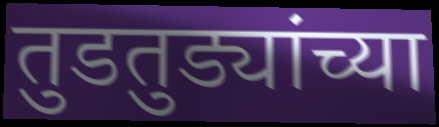
तुडतुड्यांच्या